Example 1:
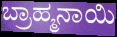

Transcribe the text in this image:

ಬ್ರಾಹ್ಮನಾಯಿ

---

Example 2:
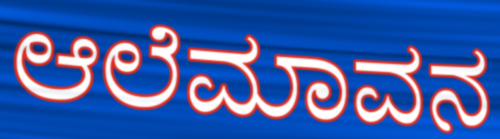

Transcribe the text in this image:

ಆಲೆಮಾವನ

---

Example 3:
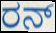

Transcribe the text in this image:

ರನ್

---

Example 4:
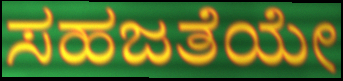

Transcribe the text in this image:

ಸಹಜತೆಯೇ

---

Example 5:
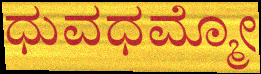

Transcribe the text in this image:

ಧುವಧಮ್ಮೋ